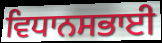
ਵਿਧਾਨਸਭਾਈ